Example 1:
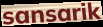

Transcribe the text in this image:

sansarik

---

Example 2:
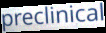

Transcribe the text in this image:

preclinical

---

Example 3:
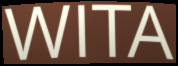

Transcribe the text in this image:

WITA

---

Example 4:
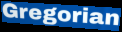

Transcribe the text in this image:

Gregorian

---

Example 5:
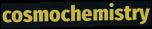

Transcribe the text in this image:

cosmochemistry